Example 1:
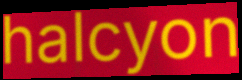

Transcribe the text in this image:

halcyon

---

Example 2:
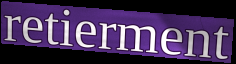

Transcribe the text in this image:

retierment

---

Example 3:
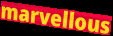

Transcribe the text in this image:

marvellous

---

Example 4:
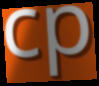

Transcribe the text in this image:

cp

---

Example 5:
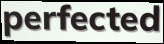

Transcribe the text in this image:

perfected